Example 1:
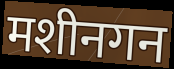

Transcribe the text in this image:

मशीनगन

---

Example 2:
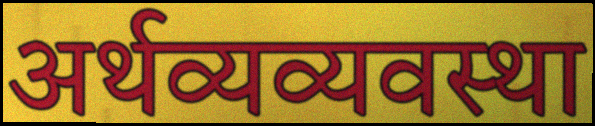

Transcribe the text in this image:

अर्थव्यव्यवस्था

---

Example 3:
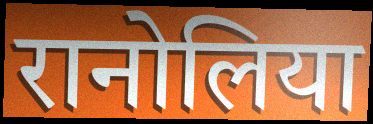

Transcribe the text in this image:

रानोलिया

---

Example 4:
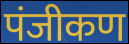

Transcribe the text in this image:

पंजीकण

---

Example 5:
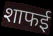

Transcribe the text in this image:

शाफई